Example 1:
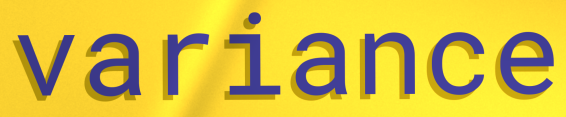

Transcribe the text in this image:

variance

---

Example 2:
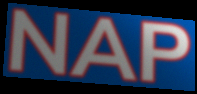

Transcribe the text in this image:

NAP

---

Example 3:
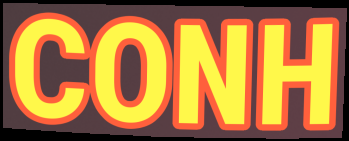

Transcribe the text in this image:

CONH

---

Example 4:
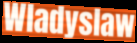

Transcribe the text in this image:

Wladyslaw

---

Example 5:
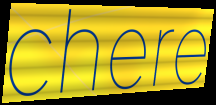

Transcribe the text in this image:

chere